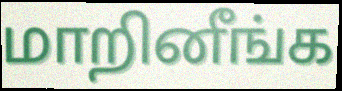
மாறினீங்க